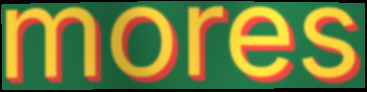
mores